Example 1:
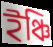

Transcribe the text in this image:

ইঞ্চি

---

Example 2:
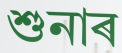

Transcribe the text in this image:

শুনাৰ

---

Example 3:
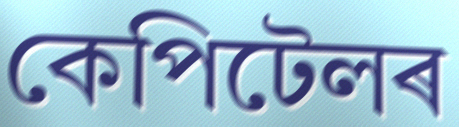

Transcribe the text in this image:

কেপিটেলৰ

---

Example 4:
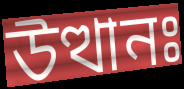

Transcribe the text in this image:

উত্থানঃ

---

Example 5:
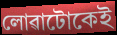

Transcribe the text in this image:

লোৱাটোকেই